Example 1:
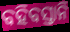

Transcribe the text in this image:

ବହିବସ୍ତାନି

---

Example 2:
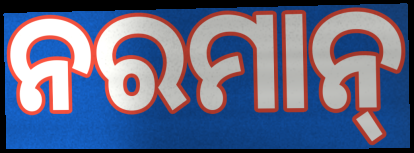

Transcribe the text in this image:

ନରମାନ୍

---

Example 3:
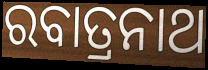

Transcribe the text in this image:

ରବାତ୍ରନାଥ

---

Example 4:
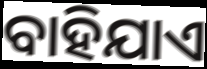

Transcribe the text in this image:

ବାହିଯାଏ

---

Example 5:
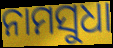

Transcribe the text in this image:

ନାମସୁଧା